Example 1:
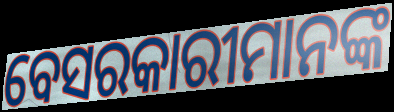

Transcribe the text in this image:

ବେସରକାରୀମାନଙ୍କ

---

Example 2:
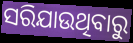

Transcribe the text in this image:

ସରିଯାଉଥିବାରୁ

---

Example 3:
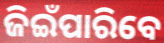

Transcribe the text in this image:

ଜିଇଁପାରିବେ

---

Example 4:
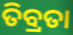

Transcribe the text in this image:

ତିବ୍ରତା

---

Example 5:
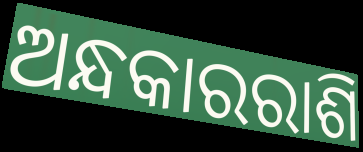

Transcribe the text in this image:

ଅନ୍ଧକାରରାଶି